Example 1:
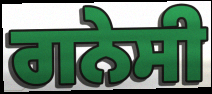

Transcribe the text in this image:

ਗਨੇਸੀ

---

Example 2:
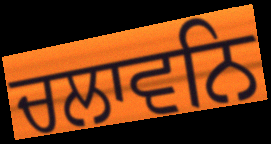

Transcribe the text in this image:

ਚਲਾਵਨਿ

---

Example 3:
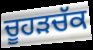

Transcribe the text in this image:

ਚੂਹਡ਼ਚੱਕ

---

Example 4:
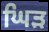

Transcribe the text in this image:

ਘਿੜ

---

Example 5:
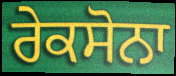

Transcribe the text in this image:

ਰੇਕਸੋਨਾ